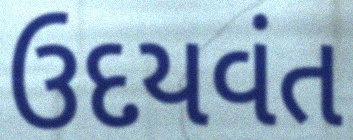
ઉદયવંત